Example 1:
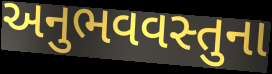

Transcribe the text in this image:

અનુભવવસ્તુના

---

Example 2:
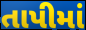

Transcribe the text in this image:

તાપીમાં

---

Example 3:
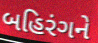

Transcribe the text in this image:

બહિરંગને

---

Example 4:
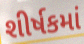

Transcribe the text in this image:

શીર્ષકમાં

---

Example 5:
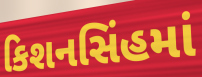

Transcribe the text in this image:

કિશનસિંહમાં